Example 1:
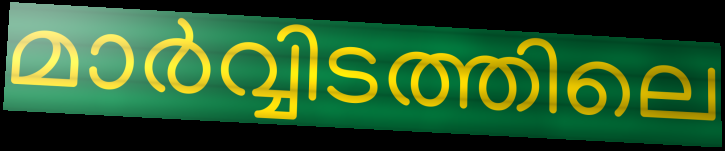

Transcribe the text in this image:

മാർവ്വിടത്തിലെ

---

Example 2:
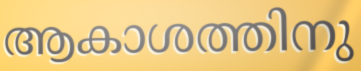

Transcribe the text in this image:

ആകാശത്തിനു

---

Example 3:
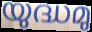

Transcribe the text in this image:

യുദ്ധമു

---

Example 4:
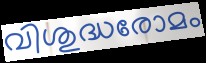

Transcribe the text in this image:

വിശുദ്ധരോമം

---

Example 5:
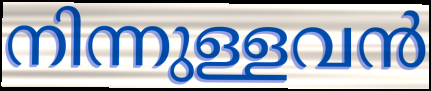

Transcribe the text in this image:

നിന്നുള്ളവൻ